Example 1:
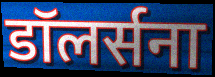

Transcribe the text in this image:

डॉलर्सना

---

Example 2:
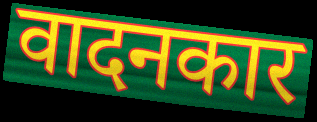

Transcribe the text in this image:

वादनकार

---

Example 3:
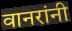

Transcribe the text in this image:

वानरांनी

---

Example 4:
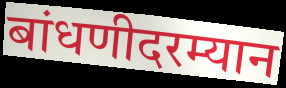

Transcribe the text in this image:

बांधणीदरम्यान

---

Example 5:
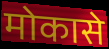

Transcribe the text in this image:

मोकासे